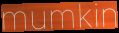
mumkin